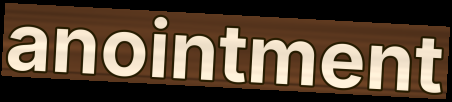
anointment